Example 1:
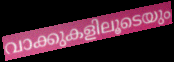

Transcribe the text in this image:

വാക്കുകളിലൂടെയും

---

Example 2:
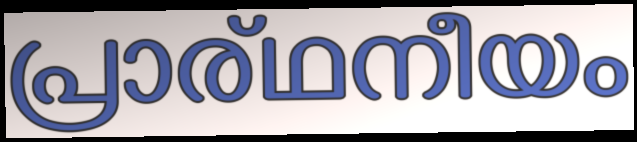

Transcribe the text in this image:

പ്രാര്ഥനീയം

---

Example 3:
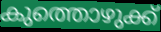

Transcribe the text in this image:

കുത്തൊഴുക്ക്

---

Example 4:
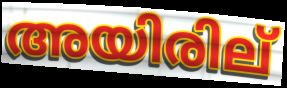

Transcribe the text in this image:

അയിരില്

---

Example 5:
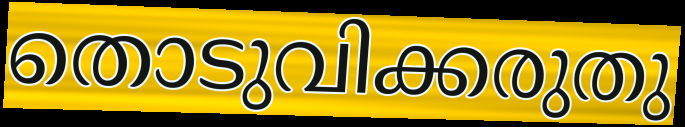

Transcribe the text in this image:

തൊടുവിക്കരുതു